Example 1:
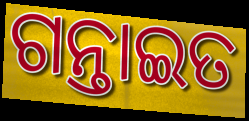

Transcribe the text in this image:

ଗନ୍ତାଇତ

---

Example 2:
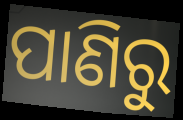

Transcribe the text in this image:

ପାଣିରୁ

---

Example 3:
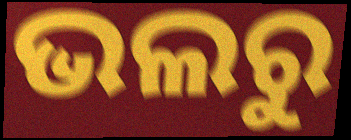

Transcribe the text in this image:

ଭଲରୁ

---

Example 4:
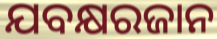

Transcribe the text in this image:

ଯବକ୍ଷରଜାନ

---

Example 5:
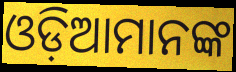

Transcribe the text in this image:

ଓଡ଼ିଆମାନଙ୍କ